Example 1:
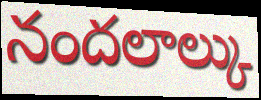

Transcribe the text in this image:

నందలాల్కు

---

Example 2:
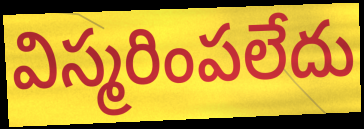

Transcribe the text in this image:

విస్మరింపలేదు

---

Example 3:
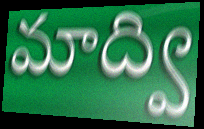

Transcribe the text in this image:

మాద్వి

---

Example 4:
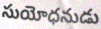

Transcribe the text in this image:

సుయోధనుడు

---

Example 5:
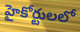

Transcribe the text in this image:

హైకోర్టులలో